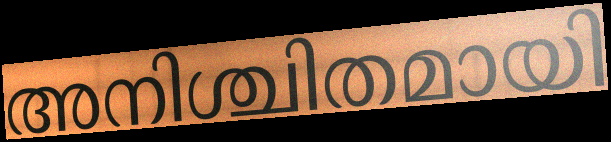
അനിശ്ചിതമായി